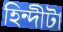
হিন্দীটা